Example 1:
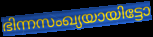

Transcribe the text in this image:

ഭിന്നസംഖ്യയായിട്ടോ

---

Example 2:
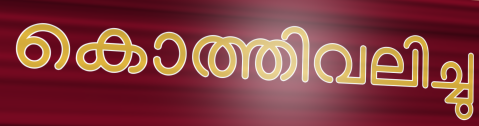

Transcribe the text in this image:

കൊത്തിവലിച്ചു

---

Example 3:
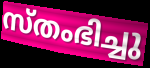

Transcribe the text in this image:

സ്തംഭിച്ചു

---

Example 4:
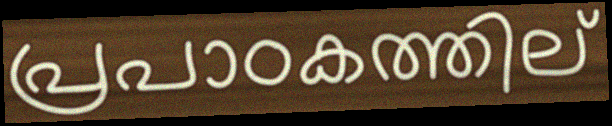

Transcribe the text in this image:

പ്രപാഠകത്തില്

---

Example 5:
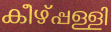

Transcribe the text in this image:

കീഴ്പ്പള്ളി